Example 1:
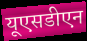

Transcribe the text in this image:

यूएसडीएन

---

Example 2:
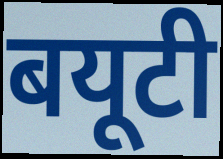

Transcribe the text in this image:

बयूटी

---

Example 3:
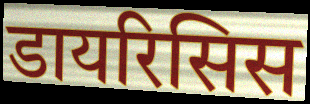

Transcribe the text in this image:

डायरिसिस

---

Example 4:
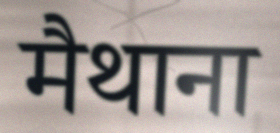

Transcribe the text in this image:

मैथाना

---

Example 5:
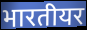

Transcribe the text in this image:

भारतीयर